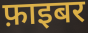
फ़ाइबर